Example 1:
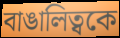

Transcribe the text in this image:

বাঙালিত্বকে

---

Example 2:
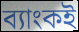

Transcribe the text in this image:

ব্যাংকই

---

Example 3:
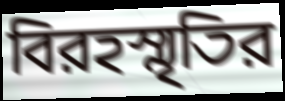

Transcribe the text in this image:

বিরহস্মৃতির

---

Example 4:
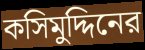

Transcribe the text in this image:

কসিমুদ্দিনের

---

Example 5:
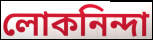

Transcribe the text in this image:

লোকনিন্দা